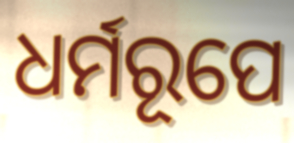
ଧର୍ମରୂପେ